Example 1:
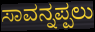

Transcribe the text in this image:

ಸಾವನ್ನಪ್ಪಲು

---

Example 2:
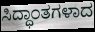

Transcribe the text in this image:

ಸಿದ್ಧಾಂತಗಳಾದ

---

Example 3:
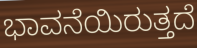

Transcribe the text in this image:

ಭಾವನೆಯಿರುತ್ತದೆ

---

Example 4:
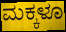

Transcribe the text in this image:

ಮಕ್ಕಳೂ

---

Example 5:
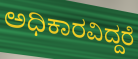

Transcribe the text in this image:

ಅಧಿಕಾರವಿದ್ದರೆ